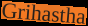
Grihastha